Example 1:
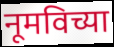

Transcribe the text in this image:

नूमविच्या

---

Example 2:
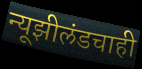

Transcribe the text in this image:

न्यूझीलंडचाही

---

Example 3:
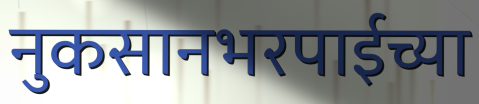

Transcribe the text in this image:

नुकसानभरपाईच्या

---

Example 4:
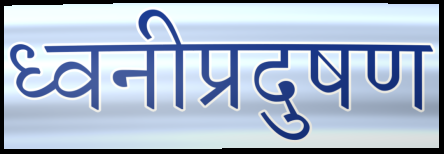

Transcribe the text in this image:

ध्वनीप्रदुषण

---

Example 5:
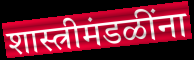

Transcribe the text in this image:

शास्त्रीमंडळींना